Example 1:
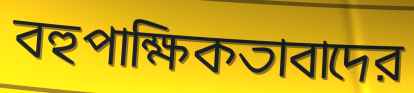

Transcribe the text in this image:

বহুপাক্ষিকতাবাদের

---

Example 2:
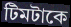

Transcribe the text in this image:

টিমটাকে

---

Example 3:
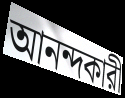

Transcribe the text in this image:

আনন্দকারী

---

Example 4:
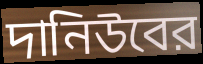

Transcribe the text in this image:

দানিউবের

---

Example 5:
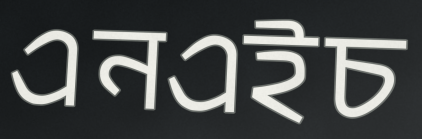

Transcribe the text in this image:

এনএইচ